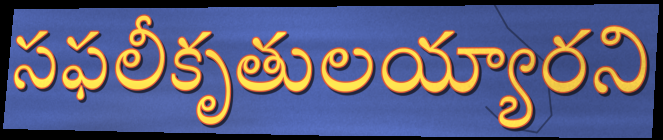
సఫలీకృతులయ్యారని